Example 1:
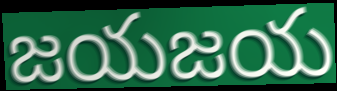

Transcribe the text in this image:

జయజయ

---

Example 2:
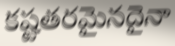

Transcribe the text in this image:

కష్టతరమైనదైనా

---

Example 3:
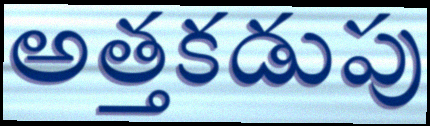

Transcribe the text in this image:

అత్తకడుపు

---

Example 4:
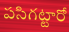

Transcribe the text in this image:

పసిగట్టారో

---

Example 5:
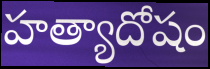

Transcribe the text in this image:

హత్యాదోషం